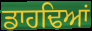
ਡਾਹਢਿਆਂ